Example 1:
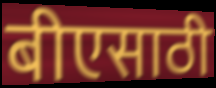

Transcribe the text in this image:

बीएसाठी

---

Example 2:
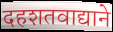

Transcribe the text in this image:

दहशतवाद्याने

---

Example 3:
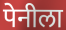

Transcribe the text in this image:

पेनीला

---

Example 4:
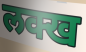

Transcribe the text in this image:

लक्ख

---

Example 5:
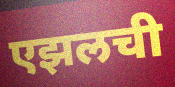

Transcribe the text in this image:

एझलची